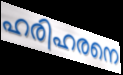
ഹരിഹരനെ